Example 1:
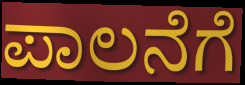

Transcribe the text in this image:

ಪಾಲನೆಗೆ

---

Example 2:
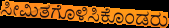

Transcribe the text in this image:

ಸೀಮಿತಗೊಳಿಸಿಕೊಂಡರು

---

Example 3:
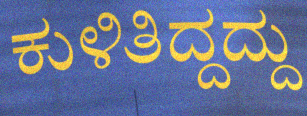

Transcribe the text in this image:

ಕುಳಿತಿದ್ದದ್ದು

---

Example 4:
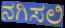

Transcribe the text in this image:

ನಗಿಸಲಿ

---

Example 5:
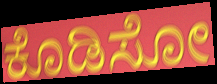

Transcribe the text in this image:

ಕೊಡಿಸೋ